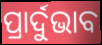
ପ୍ରାର୍ଦୁଭାବ